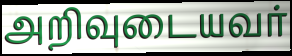
அறிவுடையவர்